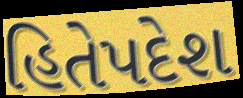
હિતેપદેશ